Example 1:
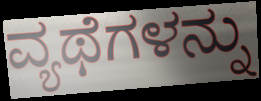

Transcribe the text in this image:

ವ್ಯಥೆಗಳನ್ನು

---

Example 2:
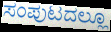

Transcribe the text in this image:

ಸಂಪುಟದಲ್ಲೂ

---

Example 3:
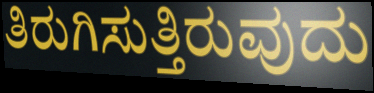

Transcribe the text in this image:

ತಿರುಗಿಸುತ್ತಿರುವುದು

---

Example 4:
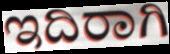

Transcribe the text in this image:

ಇದಿರಾಗಿ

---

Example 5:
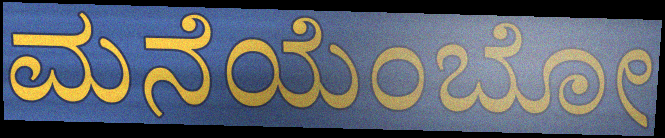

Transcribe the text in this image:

ಮನೆಯೆಂಬೋ